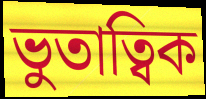
ভুতাত্বিক